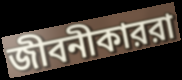
জীবনীকাররা